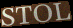
STOL